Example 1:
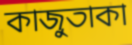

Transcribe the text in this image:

কাজুতাকা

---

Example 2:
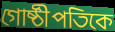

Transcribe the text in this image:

গোষ্ঠীপতিকে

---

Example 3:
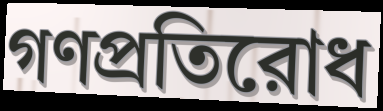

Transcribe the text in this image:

গণপ্রতিরোধ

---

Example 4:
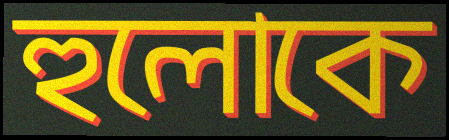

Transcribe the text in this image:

হুলোকে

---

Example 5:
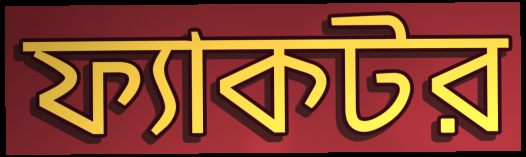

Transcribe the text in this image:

ফ্যাকটর